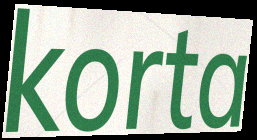
korta